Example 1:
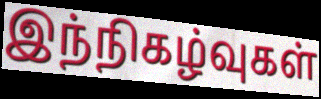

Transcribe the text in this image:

இந்நிகழ்வுகள்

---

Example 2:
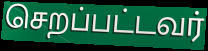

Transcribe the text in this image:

செறப்பட்டவர்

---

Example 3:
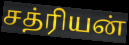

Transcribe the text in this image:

சத்ரியன்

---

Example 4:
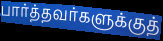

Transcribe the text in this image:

பார்த்தவர்களுக்குத்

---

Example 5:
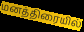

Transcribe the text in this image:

மனத்திரையில்